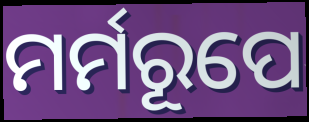
ମର୍ମରୂପେ